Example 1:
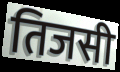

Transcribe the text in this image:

तिजसी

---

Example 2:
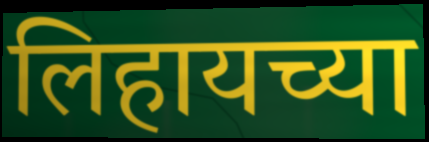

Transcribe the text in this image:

लिहायच्या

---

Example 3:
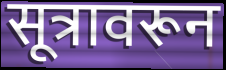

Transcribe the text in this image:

सूत्रावरून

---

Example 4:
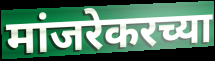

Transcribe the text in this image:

मांजरेकरच्या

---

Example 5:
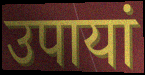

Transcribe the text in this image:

उपायां